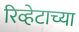
रिव्हेटाच्या